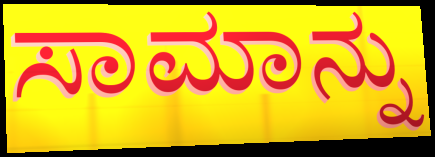
ಸಾಮಾನ್ನು